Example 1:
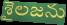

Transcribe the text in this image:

శైలజను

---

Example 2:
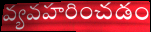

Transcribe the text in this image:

వ్యవహరించడం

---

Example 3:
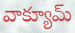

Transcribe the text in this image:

వాక్యూమ్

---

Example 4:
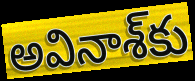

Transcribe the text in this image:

అవినాశ్‌కు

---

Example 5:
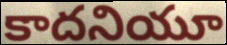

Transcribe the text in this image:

కాదనియూ